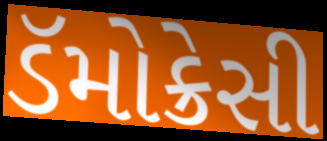
ડૅમોક્રેસી